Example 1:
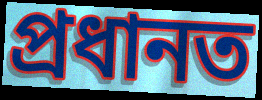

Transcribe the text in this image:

প্রধানত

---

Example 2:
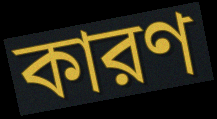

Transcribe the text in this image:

কারণ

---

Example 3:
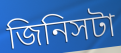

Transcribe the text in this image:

জিনিসটা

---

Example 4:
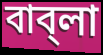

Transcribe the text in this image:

বাব্‌লা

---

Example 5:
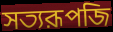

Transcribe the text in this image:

সত্যরূপজি